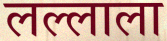
लल्लाला